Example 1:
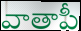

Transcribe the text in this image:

వాతాపీ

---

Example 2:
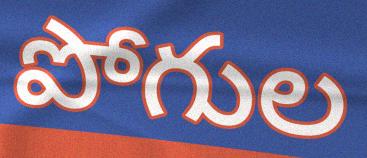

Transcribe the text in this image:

పోగుల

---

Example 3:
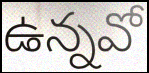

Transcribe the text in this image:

ఉన్నవో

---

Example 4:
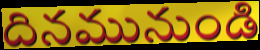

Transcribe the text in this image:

దినమునుండి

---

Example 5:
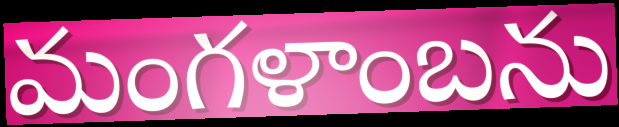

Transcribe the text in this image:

మంగళాంబను